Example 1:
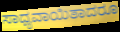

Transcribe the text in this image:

ಸಾಧ್ಯವಾಯಿತಾದರೂ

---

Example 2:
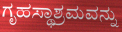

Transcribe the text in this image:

ಗೃಹಸ್ಥಾಶ್ರಮವನ್ನು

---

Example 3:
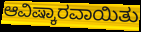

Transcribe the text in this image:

ಆವಿಷ್ಕಾರವಾಯಿತು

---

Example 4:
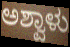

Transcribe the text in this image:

ಅಶ್ವಾಳು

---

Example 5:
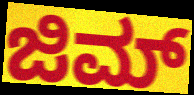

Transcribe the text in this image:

ಜಿಮ್